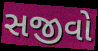
સજીવો